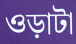
ওড়াটা